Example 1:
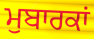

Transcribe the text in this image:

ਮੁਬਾਰਕਾਂ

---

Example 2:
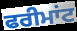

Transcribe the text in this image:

ਫਰੀਮਾਂਟ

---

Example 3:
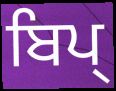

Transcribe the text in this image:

ਬਿਪ੍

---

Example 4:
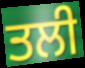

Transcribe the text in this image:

ਤਲੀ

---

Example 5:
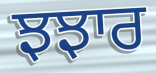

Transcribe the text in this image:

ਝਝਾਰ